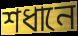
শধানে